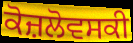
ਕੋਜ਼ਲੋਵਸਕੀ